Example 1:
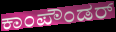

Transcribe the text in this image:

ಕಾಂಪೌಂಡರ್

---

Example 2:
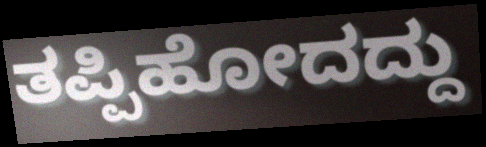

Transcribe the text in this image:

ತಪ್ಪಿಹೋದದ್ದು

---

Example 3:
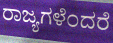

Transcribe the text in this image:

ರಾಜ್ಯಗಳೆಂದರೆ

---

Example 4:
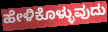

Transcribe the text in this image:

ಹೇಳಿಕೊಳ್ಳುವುದು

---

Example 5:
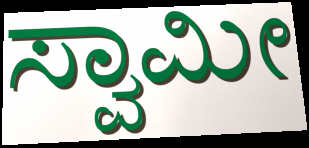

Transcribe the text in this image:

ಸ್ವಾಮೀ